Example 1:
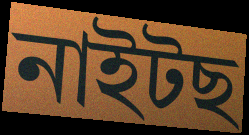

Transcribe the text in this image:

নাইটছ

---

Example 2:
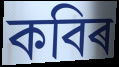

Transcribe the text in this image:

কবিৰ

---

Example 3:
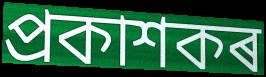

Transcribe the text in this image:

প্ৰকাশকৰ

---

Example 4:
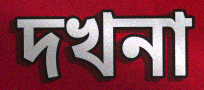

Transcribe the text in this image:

দখনা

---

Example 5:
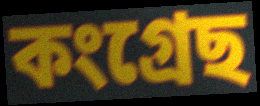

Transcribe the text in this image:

কংগ্ৰেছ